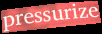
pressurize